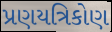
પ્રણયત્રિકોણ